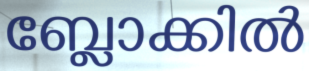
ബ്ലോക്കിൽ